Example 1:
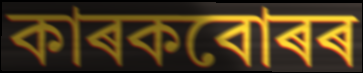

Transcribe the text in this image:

কাৰকবোৰৰ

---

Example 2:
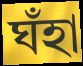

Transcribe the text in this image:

ঘঁহা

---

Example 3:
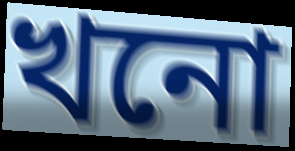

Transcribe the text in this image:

খনো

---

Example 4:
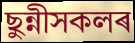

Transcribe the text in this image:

ছুন্নীসকলৰ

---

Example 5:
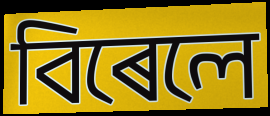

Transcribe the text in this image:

বিৰেলে